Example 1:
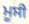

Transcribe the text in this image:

ਮੂਸੀ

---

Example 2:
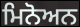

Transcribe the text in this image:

ਮਿਨੋਅਨ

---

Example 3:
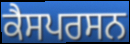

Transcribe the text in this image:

ਕੈਸਪਰਸਨ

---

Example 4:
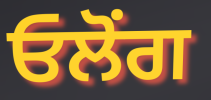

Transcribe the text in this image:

ਓਲੋਂਗ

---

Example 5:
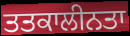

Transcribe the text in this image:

ਤਤਕਾਲੀਨਤਾ